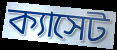
ক্যাসেট